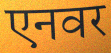
एनवर